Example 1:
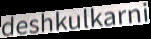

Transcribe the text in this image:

deshkulkarni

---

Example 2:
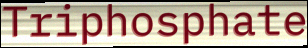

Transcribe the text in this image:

Triphosphate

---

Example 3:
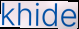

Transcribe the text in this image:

khide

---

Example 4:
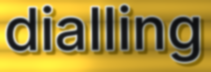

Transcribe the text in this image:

dialling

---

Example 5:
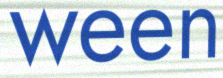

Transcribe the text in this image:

ween